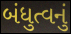
બંધુત્વનું